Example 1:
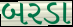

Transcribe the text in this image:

બરડા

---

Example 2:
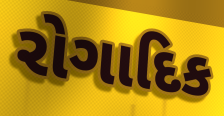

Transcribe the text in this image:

રોગાદિક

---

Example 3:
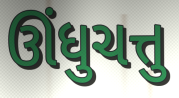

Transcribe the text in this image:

ઊંધુચત્તુ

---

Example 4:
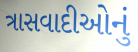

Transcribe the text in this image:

ત્રાસવાદીઓનું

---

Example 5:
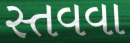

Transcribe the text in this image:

સ્તવવા